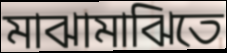
মাঝামাঝিতে